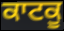
ਕਾਟਕੂ